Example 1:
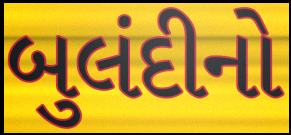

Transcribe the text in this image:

બુલંદીનો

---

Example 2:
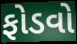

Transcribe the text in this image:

ફોડવો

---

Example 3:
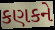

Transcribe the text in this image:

કણકને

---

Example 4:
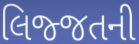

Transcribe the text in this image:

લિજ્જતની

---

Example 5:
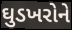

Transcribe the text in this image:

ઘુડખરોને